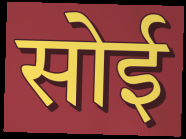
सोई